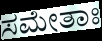
ಸಮೇತಾಃ